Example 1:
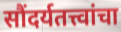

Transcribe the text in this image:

सौंदर्यतत्त्वांचा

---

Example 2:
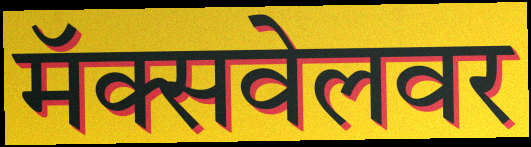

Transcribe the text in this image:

मॅक्सवेलवर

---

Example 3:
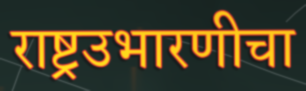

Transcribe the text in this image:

राष्ट्रउभारणीचा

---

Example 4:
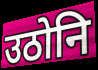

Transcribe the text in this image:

उठोनि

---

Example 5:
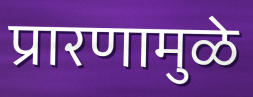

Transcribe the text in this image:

प्रारणामुळे